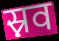
स्नव